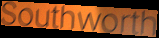
Southworth